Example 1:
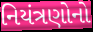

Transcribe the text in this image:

નિયંત્રણોનો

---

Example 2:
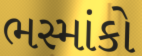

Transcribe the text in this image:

ભસ્માંકો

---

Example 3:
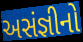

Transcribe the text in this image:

અસંજ્ઞીનો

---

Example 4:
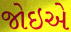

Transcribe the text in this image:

જોઇએ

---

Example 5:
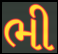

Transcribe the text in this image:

ભી